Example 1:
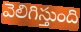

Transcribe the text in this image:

వెలిగిస్తుంది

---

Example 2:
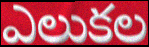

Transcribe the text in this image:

ఎలుకల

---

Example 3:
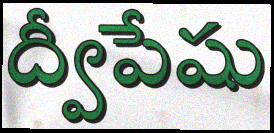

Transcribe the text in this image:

ద్వీపేషు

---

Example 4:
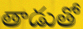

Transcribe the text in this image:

తాడుతో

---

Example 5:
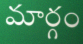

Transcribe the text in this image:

మార్గం